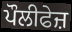
ਪੌਲੀਫੇਜ਼